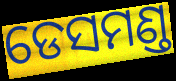
ଡେସମଣ୍ଡ